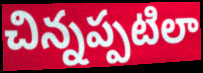
చిన్నప్పటిలా